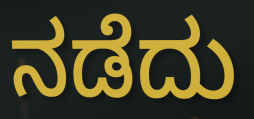
ನಡೆದು